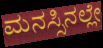
ಮನಸ್ಸಿನಲ್ಲೇ